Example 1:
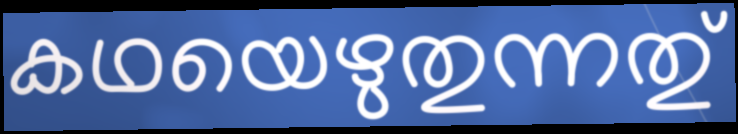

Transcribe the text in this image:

കഥയെഴുതുന്നതു്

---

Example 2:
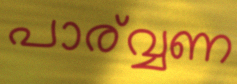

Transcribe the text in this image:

പാര്വ്വണ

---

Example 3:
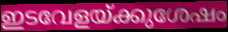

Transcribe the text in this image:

ഇടവേളയ്ക്കുശേഷം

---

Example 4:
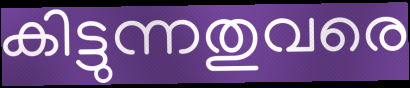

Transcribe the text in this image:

കിട്ടുന്നതുവരെ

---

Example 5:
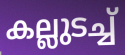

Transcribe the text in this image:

കല്ലുടച്ച്